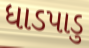
ધાડપાડુ